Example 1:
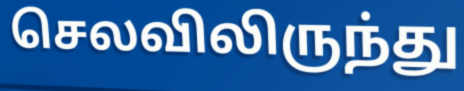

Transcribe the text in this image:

செலவிலிருந்து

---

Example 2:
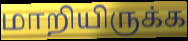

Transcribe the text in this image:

மாறியிருக்க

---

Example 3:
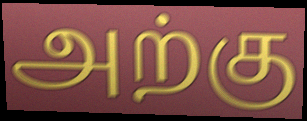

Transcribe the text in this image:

அற்கு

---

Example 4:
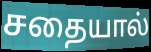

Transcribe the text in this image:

சதையால்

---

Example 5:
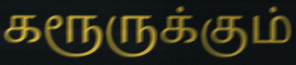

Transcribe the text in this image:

கரூருக்கும்